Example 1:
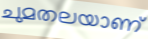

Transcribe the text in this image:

ചുമതലയാണ്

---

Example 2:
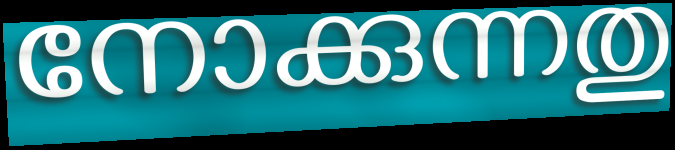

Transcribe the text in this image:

നോക്കുന്നതു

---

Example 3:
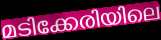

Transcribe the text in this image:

മടിക്കേരിയിലെ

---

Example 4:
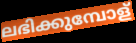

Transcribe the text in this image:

ലഭിക്കുമ്പോള്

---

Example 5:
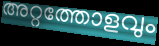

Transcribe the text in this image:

അറ്റത്തോളവും